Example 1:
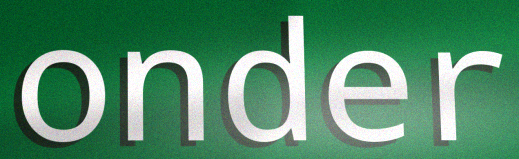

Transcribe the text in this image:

onder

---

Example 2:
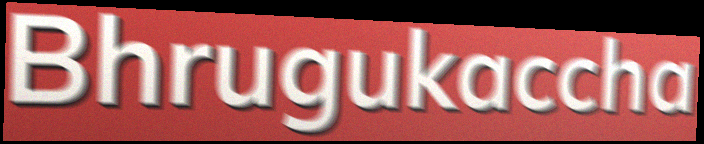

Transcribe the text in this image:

Bhrugukaccha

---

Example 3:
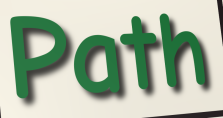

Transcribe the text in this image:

Path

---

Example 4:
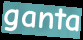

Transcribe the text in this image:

ganta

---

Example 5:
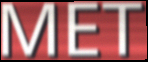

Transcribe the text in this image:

MET